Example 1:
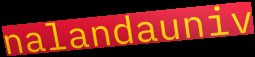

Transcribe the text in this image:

nalandauniv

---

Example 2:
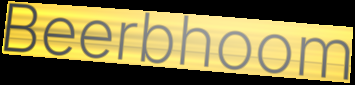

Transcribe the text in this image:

Beerbhoom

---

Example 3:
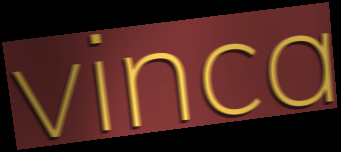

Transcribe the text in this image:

vinca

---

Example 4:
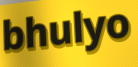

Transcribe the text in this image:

bhulyo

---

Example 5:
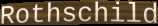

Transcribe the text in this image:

Rothschild